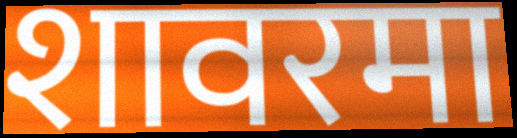
शावरमा